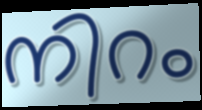
നിറം